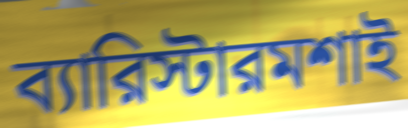
ব্যারিস্টারমশাই